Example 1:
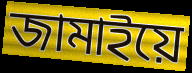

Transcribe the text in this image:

জামাইয়ে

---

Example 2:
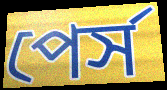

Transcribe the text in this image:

পের্স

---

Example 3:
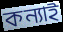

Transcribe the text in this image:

কন্যাই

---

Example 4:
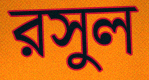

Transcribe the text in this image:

রসুল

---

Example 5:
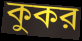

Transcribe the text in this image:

কুকর